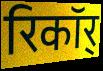
रिकॉर्